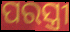
ପରସ୍ତ୍ରୀ